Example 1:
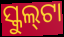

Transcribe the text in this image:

ସ୍କୁଲ୍‍ଟା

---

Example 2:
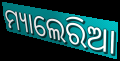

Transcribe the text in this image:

ମ୍ଯାଲେରିଆ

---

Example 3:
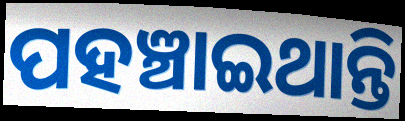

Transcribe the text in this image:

ପହଞ୍ଚାଇଥାନ୍ତି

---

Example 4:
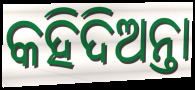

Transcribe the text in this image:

କହିଦିଅନ୍ତା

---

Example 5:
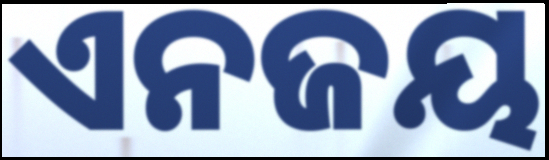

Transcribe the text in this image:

ଏନଜୟ